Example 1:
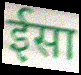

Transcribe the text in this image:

ई़सा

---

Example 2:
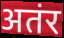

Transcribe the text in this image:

अतंर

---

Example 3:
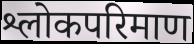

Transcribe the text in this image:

श्लोकपरिमाण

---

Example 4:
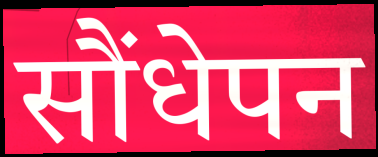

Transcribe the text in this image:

सौंधेपन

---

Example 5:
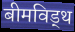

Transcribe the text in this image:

बीमविड्थ